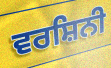
ਵਰਸ਼ਿਨੀ